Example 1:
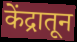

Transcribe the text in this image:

केंद्रातून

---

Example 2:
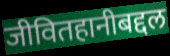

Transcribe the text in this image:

जीवितहानीबद्दल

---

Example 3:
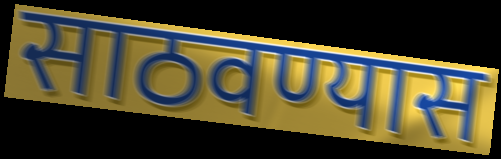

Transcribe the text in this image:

साठवण्यास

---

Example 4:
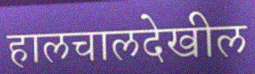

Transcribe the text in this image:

हालचालदेखील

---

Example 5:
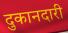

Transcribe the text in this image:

दुकानदारी